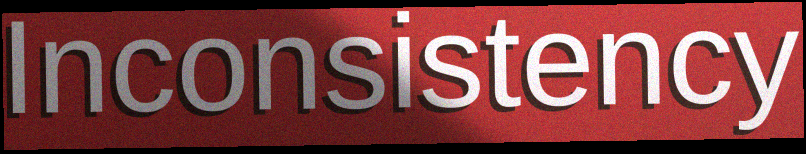
Inconsistency